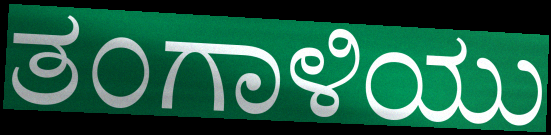
ತಂಗಾಳಿಯು